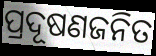
ପ୍ରଦୂଷଣଜନିତ